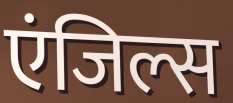
एंजिल्स